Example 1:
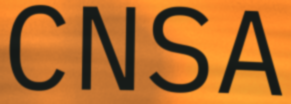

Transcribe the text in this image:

CNSA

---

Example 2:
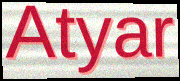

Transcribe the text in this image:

Atyar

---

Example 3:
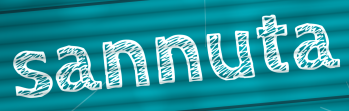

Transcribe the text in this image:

sannuta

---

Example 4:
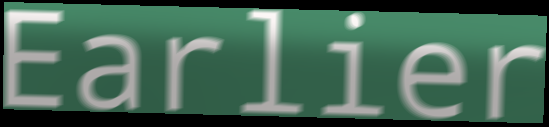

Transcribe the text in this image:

Earlier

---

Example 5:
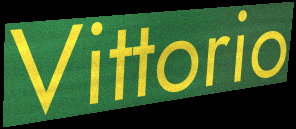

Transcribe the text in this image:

Vittorio